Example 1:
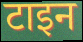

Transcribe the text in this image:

टाइन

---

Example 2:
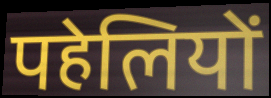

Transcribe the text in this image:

पहेलियों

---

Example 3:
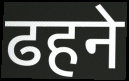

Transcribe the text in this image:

ढहने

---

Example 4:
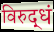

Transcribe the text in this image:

विरुद्धं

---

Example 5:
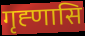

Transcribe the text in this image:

गृह्णासि